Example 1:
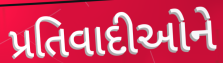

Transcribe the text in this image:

પ્રતિવાદીઓને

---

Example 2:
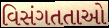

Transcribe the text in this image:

વિસંગતતાઓ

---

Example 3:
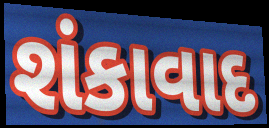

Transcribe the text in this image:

શંકાવાદ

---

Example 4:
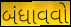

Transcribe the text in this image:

બંધાવવો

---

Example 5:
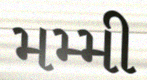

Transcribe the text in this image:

મમ્મી